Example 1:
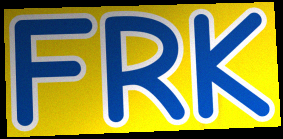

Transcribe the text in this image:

FRK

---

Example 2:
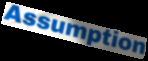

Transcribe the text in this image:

Assumption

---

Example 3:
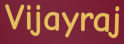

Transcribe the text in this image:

Vijayraj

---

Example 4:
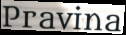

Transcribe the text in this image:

Pravina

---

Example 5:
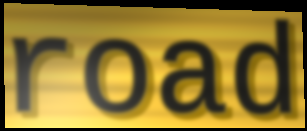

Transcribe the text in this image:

road